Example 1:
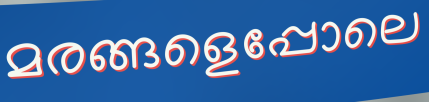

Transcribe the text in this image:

മരങ്ങളെപ്പോലെ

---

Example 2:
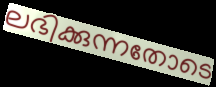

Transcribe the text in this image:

ലഭിക്കുന്നതോടെ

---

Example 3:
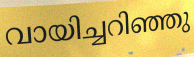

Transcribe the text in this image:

വായിച്ചറിഞ്ഞു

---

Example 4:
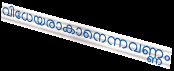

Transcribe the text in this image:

വിധേയരാകാനെന്നവണ്ണം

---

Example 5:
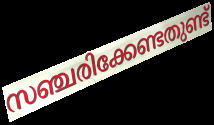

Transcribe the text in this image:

സഞ്ചരിക്കേണ്ടതുണ്ട്